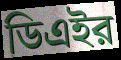
ডিএইর